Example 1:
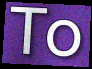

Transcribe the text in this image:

To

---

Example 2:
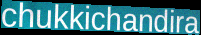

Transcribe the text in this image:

chukkichandira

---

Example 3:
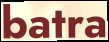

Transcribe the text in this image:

batra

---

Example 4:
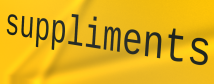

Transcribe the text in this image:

suppliments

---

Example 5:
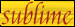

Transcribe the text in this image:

sublime